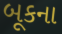
બૂકના